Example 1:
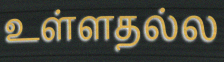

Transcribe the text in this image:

உள்ளதல்ல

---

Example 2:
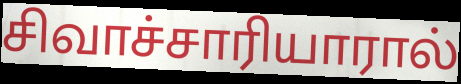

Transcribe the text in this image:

சிவாச்சாரியாரால்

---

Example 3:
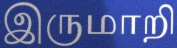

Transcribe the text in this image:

இருமாறி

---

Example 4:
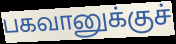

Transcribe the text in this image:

பகவானுக்குச்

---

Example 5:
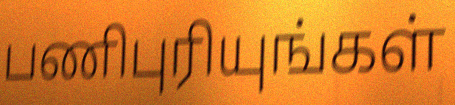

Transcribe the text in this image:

பணிபுரியுங்கள்